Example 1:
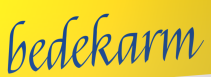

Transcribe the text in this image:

bedekarm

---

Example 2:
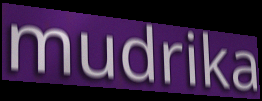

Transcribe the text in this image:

mudrika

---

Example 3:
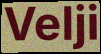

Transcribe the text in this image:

Velji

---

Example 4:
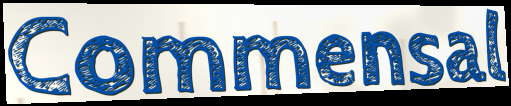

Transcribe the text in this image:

Commensal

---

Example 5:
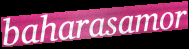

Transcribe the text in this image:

baharasamor